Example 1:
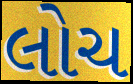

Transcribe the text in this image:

લોચ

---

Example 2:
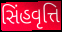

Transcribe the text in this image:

સિંહવૃત્તિ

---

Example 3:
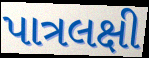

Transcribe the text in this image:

પાત્રલક્ષી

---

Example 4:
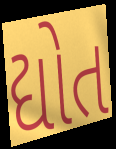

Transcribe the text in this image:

દ્યોત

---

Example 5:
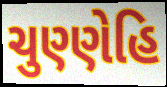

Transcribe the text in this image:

ચુણ્ણેહિ